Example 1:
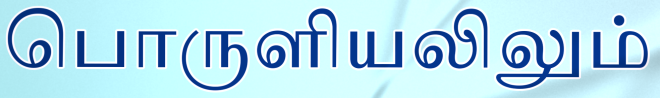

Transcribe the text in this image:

பொருளியலிலும்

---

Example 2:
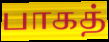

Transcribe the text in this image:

பாகத்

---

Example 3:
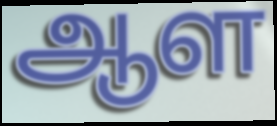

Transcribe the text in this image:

ஆள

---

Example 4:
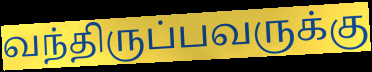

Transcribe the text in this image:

வந்திருப்பவருக்கு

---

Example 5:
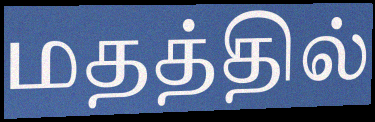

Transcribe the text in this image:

மதத்தில்